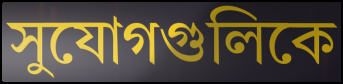
সুযোগগুলিকে